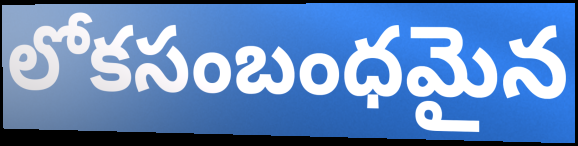
లోకసంబంధమైన